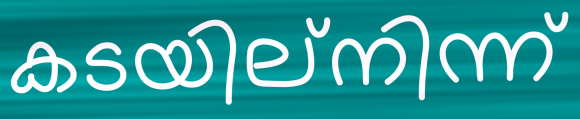
കടയില്നിന്ന്